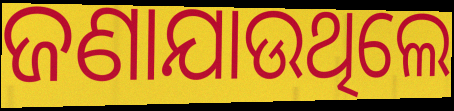
ଜଣାଯାଉଥିଲେ